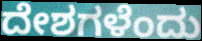
ದೇಶಗಳೆಂದು